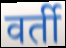
वर्ती